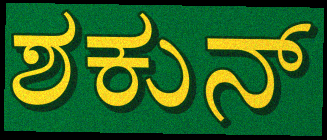
ಶಕುನ್